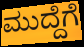
ಮುದ್ದೆಗೆ